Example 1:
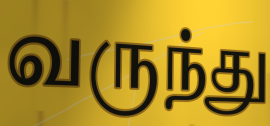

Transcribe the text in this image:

வருந்து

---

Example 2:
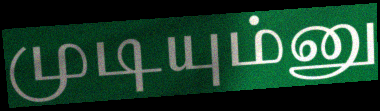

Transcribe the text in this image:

முடியும்னு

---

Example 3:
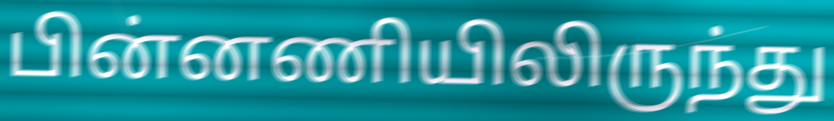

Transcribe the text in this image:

பின்னணியிலிருந்து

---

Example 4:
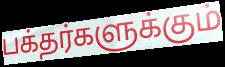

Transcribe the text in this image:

பக்தர்களுக்கும்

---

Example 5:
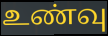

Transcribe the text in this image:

உண்வு